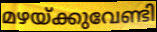
മഴയ്ക്കുവേണ്ടി